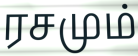
ரசமும்